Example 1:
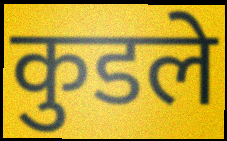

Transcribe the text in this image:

कुडले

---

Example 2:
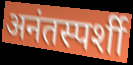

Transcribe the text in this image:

अनंतस्पर्शी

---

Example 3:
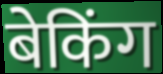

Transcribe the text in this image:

बेकिंग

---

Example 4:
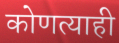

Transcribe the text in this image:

कोणत्याही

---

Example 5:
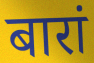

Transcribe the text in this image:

बारां